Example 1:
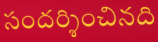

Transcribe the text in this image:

సందర్శించినది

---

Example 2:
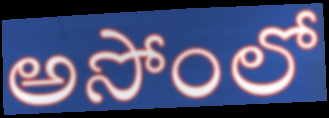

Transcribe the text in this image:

అసోంలో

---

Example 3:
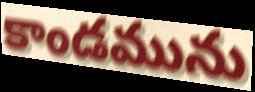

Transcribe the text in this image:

కాండమును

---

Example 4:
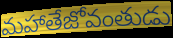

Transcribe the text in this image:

మహాతేజోవంతుడు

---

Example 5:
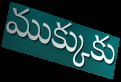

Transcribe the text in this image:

ముక్కుకు